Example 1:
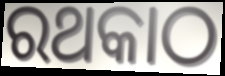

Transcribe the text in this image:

ରଥକାଠ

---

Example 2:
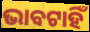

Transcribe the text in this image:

ଭାବଟାହିଁ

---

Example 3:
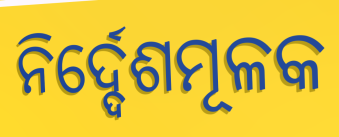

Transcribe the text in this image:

ନିର୍ଦ୍ଦେଶମୂଳକ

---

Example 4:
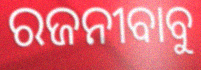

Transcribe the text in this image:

ରଜନୀବାବୁ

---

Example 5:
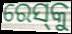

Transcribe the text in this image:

ରେସ୍‌କୁ